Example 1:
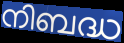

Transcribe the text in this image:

നിബദ്ധ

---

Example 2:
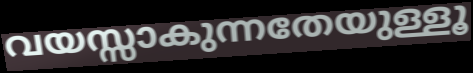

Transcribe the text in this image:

വയസ്സാകുന്നതേയുള്ളൂ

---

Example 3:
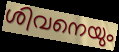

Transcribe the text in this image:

ശിവനെയും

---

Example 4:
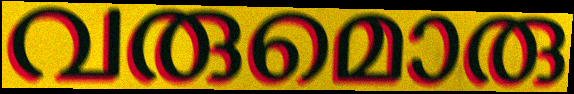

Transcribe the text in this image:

വരുമൊരു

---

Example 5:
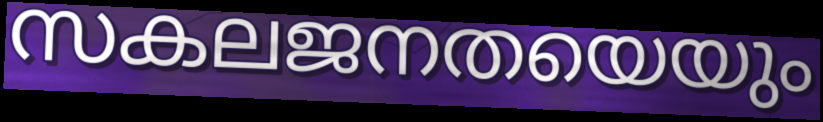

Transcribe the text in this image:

സകലജനതയെയും